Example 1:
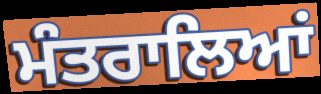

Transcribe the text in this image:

ਮੰਤਰਾਲਿਆਂ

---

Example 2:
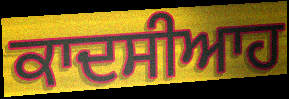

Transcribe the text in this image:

ਕਾਦਸੀਆਹ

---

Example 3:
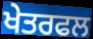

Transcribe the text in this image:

ਖੇਤਰਫਲ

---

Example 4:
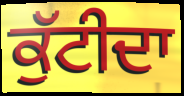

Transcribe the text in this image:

ਕੁੱਟੀਦਾ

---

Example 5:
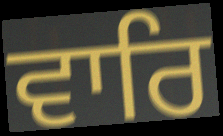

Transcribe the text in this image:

ਵਾਰਿ